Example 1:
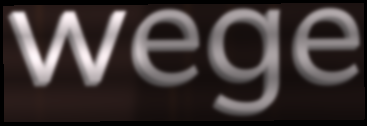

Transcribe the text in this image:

wege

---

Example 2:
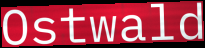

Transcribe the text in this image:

Ostwald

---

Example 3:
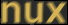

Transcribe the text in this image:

nux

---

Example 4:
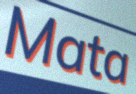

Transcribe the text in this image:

Mata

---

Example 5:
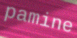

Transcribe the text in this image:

pamine